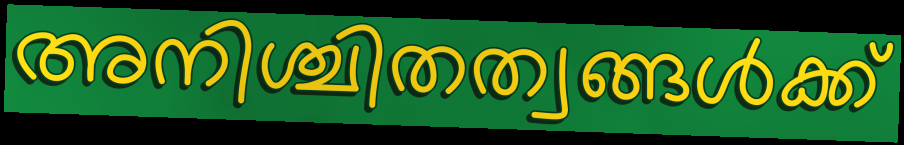
അനിശ്ചിതത്വങ്ങൾക്ക്